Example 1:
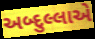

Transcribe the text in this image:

અબ્દુલ્લાએ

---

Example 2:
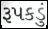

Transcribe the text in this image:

રૂપકડું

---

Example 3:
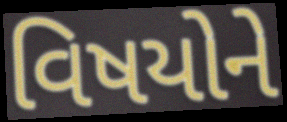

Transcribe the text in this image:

વિષયોને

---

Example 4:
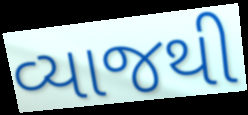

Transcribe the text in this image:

વ્યાજથી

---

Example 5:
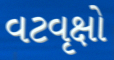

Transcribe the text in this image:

વટવૃક્ષો